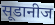
सूडानीज